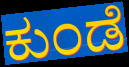
ಕುಂಡೆ